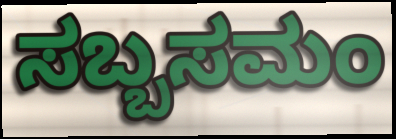
ಸಬ್ಬಸಮಂ